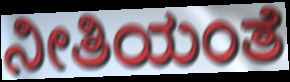
ನೀತಿಯಂತೆ